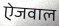
ऐजवाल